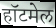
हॉटमेल